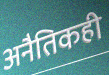
अनैतिकही